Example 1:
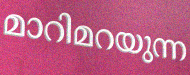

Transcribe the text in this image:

മാറിമറയുന്ന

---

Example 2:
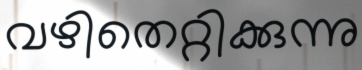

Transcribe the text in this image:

വഴിതെറ്റിക്കുന്നു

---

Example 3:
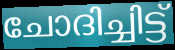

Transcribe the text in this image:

ചോദിച്ചിട്ട്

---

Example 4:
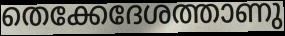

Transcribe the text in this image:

തെക്കേദേശത്താണു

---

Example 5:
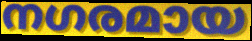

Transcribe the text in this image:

നഗരമായ